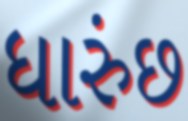
ધારુંછ